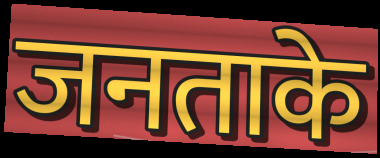
जनताके